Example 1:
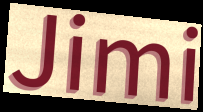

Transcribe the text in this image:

Jimi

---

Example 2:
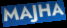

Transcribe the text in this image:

MAJHA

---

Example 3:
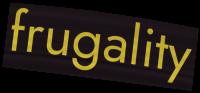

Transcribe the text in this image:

frugality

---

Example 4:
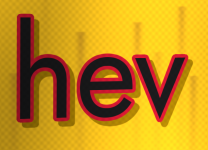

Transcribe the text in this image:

hev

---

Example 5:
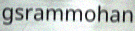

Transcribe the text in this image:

gsrammohan